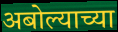
अबोल्याच्या